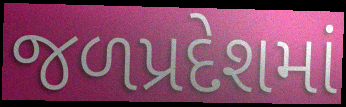
જળપ્રદેશમાં